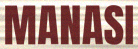
MANASI